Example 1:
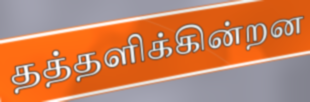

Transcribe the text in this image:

தத்தளிக்கின்றன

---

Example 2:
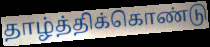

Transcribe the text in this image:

தாழ்த்திக்கொண்டு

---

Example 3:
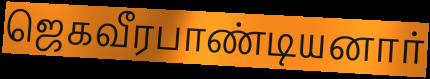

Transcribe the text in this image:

ஜெகவீரபாண்டியனார்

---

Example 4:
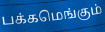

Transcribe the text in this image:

பக்கமெங்கும்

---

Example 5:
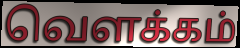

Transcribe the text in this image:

வெளக்கம்